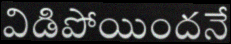
విడిపోయిందనే